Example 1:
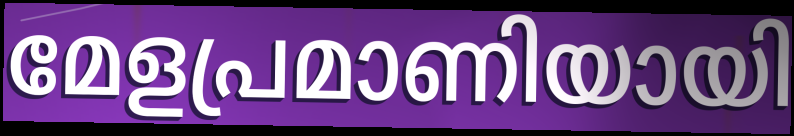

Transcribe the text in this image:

മേളപ്രമാണിയായി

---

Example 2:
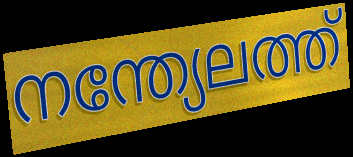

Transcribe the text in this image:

നന്ത്യേലത്ത്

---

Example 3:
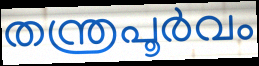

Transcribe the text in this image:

തന്ത്രപൂർവം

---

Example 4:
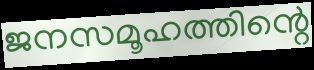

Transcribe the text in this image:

ജനസമൂഹത്തിന്റെ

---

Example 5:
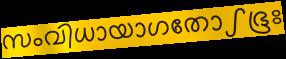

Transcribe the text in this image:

സംവിധായാഗതോഽഭൂഃ